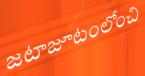
జటాజూటంలోంచి